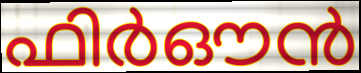
ഫിർഔൻ